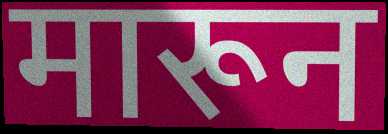
मारून